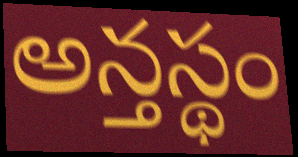
అన్తస్థం